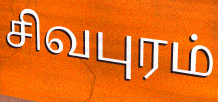
சிவபுரம்